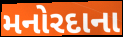
મનોરદાના